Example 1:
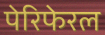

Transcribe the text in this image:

पेरिफेरल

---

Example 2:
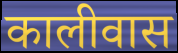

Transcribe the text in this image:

कालीवास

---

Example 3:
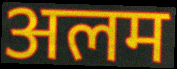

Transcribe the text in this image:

अलम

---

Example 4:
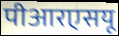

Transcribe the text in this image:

पीआरएसयू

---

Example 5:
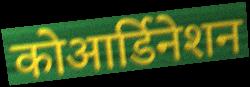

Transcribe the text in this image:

कोआर्डिनेशन